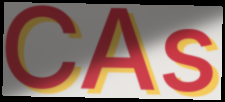
CAs